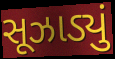
સૂઝાડ્યું